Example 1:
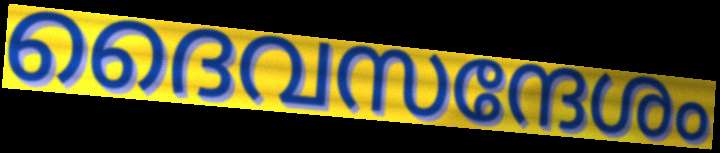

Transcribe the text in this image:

ദൈവസന്ദേശം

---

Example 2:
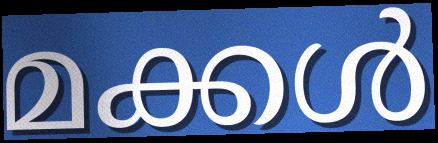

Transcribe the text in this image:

മക്കൾ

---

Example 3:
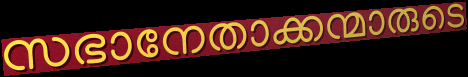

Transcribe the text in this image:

സഭാനേതാക്കന്മാരുടെ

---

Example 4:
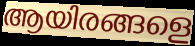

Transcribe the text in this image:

ആയിരങ്ങളെ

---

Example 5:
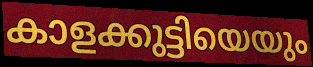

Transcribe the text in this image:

കാളക്കുട്ടിയെയും